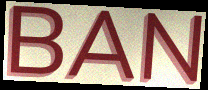
BAN